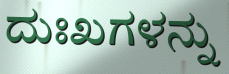
ದುಃಖಗಳನ್ನು